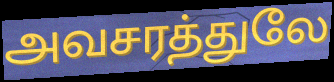
அவசரத்துலே